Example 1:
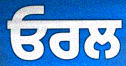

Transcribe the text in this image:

ਓਰਲ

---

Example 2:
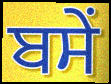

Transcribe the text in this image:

ਬਸੇਂ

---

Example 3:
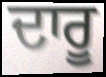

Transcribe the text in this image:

ਦਾਰੂ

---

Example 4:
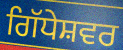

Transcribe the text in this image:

ਗਿੱਧੇਸ਼ਵਰ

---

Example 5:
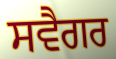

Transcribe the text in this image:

ਸਵੈਗਰ